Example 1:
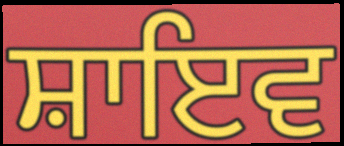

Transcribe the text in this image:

ਸ਼ਾਇਵ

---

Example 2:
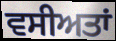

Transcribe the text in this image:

ਵਸੀਅਤਾਂ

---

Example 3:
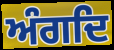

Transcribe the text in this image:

ਅੰਗਦਿ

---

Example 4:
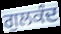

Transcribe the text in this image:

ਗੁਲਕੰਦ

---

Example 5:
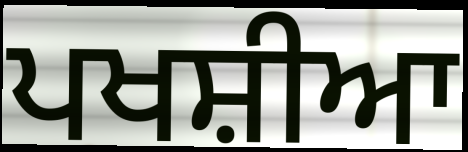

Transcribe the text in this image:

ਪਖਸ਼ੀਆ